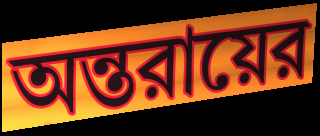
অন্তরায়ের